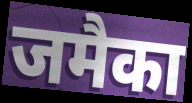
जमैका